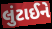
લુંટાઈને